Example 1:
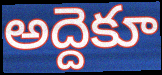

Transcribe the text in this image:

అద్దెకూ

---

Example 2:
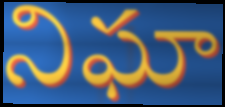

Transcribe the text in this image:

నిఘా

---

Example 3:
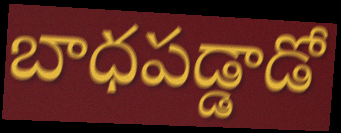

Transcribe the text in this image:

బాధపడ్డాడో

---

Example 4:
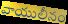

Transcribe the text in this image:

వాయులీనం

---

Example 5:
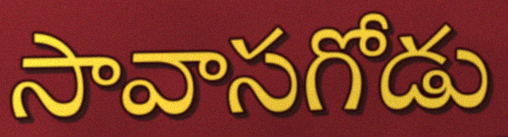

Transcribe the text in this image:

సావాసగోడు